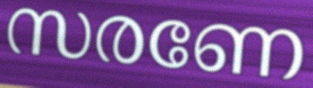
സരണേ